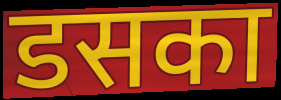
डसका